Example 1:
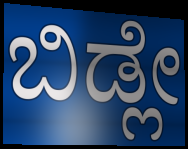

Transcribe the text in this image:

ಬಿಡ್ಲೇ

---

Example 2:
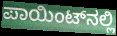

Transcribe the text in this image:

ಪಾಯಿಂಟ್‌ನಲ್ಲಿ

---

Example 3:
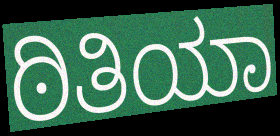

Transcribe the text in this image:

ಠಿತಿಯಾ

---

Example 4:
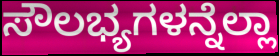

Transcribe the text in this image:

ಸೌಲಭ್ಯಗಳನ್ನೆಲ್ಲಾ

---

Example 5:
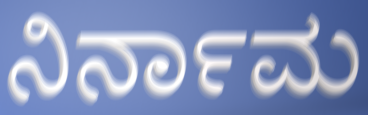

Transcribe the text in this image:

ನಿರ್ನಾಮ